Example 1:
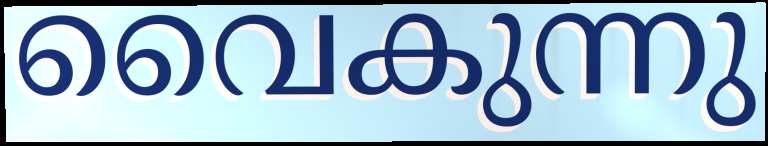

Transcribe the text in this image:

വൈകുന്നു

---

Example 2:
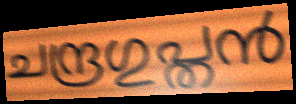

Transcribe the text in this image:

ചന്ദ്രഗുപ്തൻ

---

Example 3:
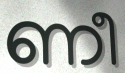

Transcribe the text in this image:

ണീ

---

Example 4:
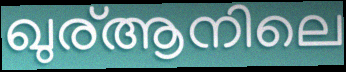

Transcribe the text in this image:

ഖുര്ആനിലെ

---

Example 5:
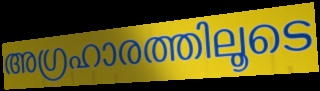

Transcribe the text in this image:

അഗ്രഹാരത്തിലൂടെ